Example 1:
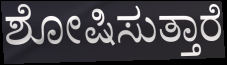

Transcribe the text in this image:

ಶೋಷಿಸುತ್ತಾರೆ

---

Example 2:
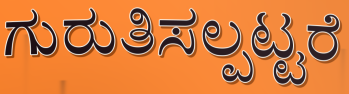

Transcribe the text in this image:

ಗುರುತಿಸಲ್ಪಟ್ಟರೆ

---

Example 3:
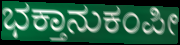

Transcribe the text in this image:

ಭಕ್ತಾನುಕಂಪೀ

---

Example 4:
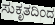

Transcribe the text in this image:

ಸುಕೃತದಿಂದ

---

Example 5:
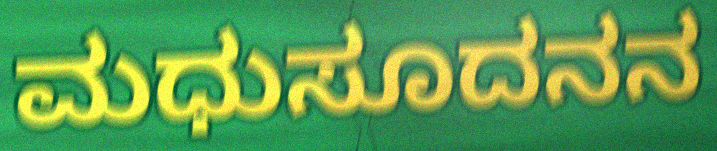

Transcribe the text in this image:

ಮಧುಸೂದನನ